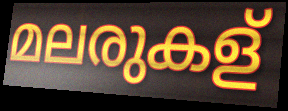
മലരുകള്